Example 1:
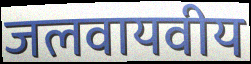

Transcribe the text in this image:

जलवायवीय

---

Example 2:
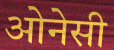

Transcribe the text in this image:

ओनेसी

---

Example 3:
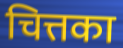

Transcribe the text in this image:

चित्तका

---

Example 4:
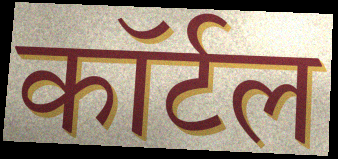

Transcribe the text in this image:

कॉर्टल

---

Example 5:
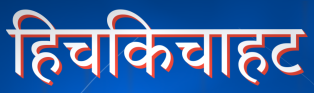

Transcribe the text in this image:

हिचकिचाहट